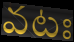
వటః